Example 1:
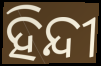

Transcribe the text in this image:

ହିନ୍ଦୀ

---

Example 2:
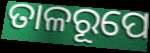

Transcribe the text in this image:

ତାଳରୂପେ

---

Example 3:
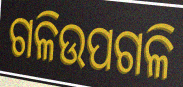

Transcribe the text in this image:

ଗଳିଉପଗଳି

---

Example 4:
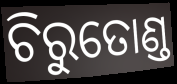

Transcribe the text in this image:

ଚିରୁତୋଣ୍ଡ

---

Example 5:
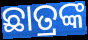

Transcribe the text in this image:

ଛାତ୍ରଙ୍କ